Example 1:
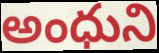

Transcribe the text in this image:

అంధుని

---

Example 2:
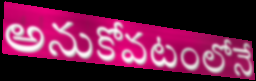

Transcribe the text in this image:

అనుకోవటంలోనే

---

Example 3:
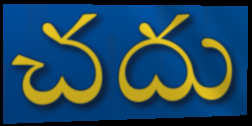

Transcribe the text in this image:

చదు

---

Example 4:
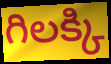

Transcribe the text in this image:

గిలక్కి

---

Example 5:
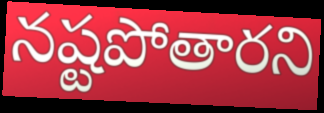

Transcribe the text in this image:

నష్టపోతారని